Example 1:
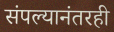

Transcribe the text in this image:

संपल्यानंतरही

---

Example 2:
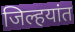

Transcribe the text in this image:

जिल्हयांत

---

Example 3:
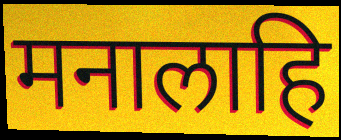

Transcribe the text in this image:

मनालाहि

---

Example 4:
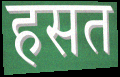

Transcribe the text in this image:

हसत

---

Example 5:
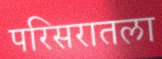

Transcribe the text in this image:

परिसरातला